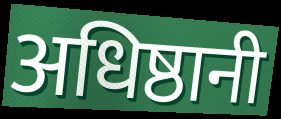
अधिष्ठानी